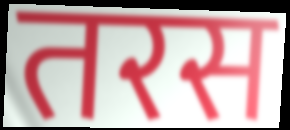
तरस